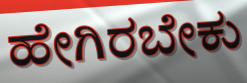
ಹೇಗಿರಬೇಕು